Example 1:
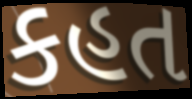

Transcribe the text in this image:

કહત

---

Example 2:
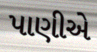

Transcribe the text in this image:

પાણીએ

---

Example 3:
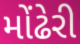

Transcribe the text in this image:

મોંઢેરી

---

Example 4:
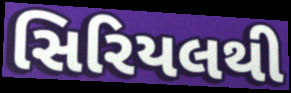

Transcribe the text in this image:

સિરિયલથી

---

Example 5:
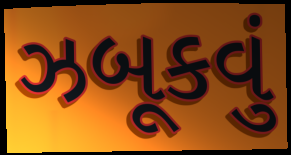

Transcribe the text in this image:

ઝબૂકવું